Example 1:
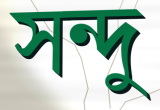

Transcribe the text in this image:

সন্দু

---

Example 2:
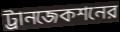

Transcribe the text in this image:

ট্রানজেকশনের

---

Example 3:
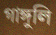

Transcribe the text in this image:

গাঙ্গুলি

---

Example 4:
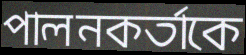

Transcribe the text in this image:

পালনকর্তাকে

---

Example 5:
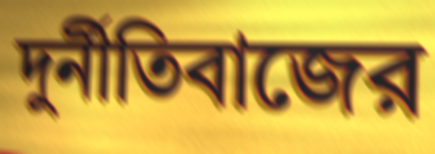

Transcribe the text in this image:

দুর্নীতিবাজের